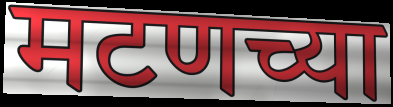
मटणच्या